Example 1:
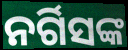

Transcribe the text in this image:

ନର୍ଗିସଙ୍କ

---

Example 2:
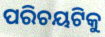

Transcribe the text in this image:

ପରିଚୟଟିକୁ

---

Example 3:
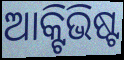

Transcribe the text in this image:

ଆକ୍ଟିଭିଷ୍ଟ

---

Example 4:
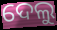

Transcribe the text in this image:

ଦେଲୁ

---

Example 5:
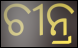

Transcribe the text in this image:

ଚୀନ୍ର